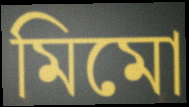
মিমো